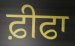
ਫ਼ੀਫਾ